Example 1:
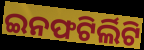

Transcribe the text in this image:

ଇନଫଟିର୍ଲିଟି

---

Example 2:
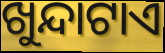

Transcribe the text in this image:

ଖୁନ୍ଦାଟାଏ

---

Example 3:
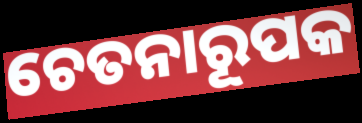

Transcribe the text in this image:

ଚେତନାରୂପକ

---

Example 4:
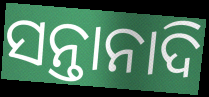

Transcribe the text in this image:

ସନ୍ତାନାଦି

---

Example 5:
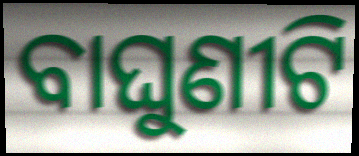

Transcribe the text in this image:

ବାଘୁଣୀଟି